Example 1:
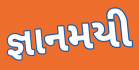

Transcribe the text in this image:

જ્ઞાનમયી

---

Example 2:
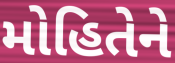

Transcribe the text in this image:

મોહિતેને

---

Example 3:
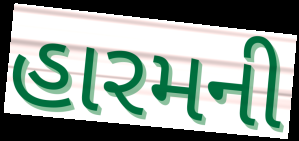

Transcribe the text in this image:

હારમની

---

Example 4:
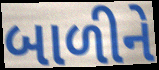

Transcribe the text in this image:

બાળીને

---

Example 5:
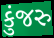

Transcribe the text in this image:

કુંજરુ